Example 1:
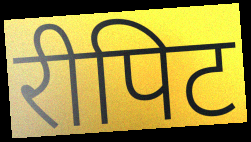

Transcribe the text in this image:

रीपिट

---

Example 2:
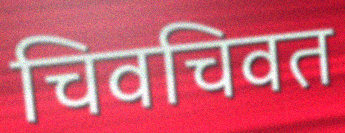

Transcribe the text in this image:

चिवचिवत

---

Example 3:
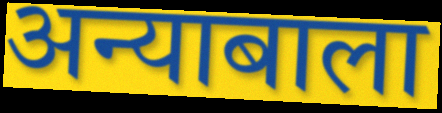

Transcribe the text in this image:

अन्याबाला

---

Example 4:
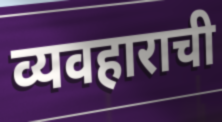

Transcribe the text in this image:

व्यवहाराची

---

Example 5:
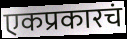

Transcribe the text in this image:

एकप्रकारचं